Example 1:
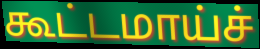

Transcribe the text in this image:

கூட்டமாய்ச்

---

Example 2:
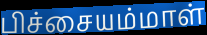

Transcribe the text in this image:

பிச்சையம்மாள்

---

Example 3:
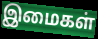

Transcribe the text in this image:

இமைகள்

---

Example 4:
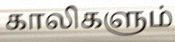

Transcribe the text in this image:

காலிகளும்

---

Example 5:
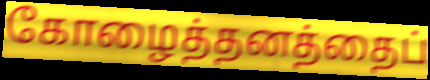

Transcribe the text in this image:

கோழைத்தனத்தைப்